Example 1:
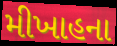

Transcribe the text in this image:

મીખાહના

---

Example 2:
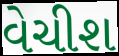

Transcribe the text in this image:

વેચીશ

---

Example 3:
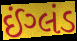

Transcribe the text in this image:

ઈંગ્લંડ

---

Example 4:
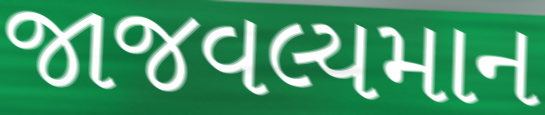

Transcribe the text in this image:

જાજવલ્યમાન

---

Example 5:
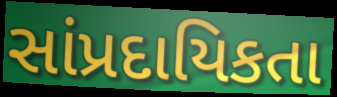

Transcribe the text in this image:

સાંપ્રદાયિકતા